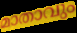
മാതാവും